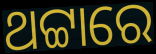
ଥଟ୍ଟାରେ